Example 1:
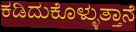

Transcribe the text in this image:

ಕಡಿದುಕೊಳ್ಳುತ್ತಾನೆ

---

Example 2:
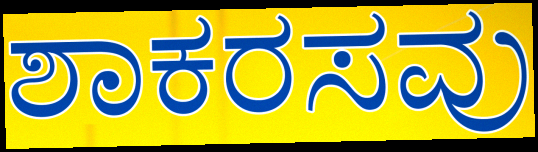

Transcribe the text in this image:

ಶಾಕರಸವು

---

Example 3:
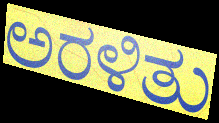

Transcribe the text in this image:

ಅರಳಿತು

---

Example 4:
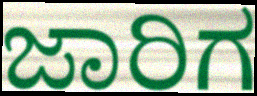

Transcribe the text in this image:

ಜಾರಿಗ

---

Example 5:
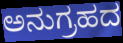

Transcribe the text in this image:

ಅನುಗ್ರಹದ